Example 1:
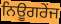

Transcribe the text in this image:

ਨਿਊਗਰੇਂਜ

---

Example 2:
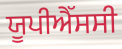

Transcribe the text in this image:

ਯੂਪੀਐੱਸਸੀ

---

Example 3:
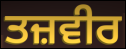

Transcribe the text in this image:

ਤਜ਼ਵੀਰ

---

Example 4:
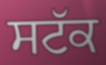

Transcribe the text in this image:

ਸਟੱਕ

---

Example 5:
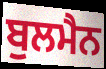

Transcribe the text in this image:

ਬੁਲਮੈਨ